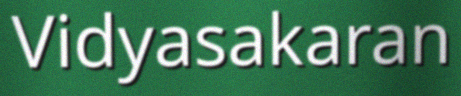
Vidyasakaran